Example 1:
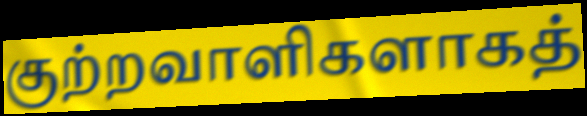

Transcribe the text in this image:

குற்றவாளிகளாகத்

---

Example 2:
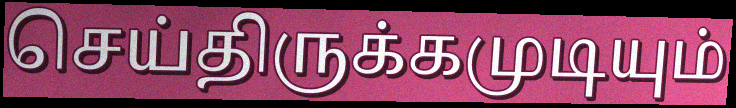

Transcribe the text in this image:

செய்திருக்கமுடியும்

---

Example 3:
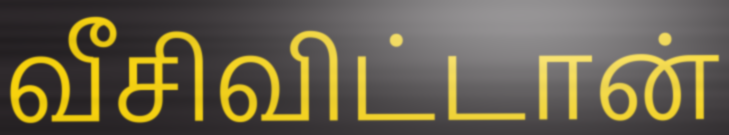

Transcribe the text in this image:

வீசிவிட்டான்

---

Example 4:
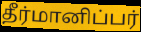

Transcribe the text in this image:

தீர்மானிப்பர்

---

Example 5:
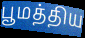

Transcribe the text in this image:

பூமத்திய